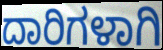
ದಾರಿಗಳಾಗಿ